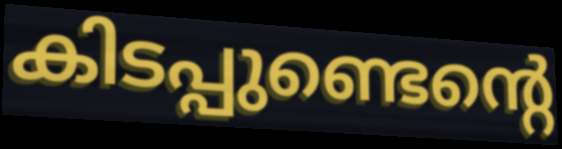
കിടപ്പുണ്ടെന്റെ